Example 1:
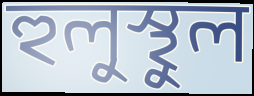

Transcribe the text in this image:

হুলুস্থুল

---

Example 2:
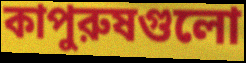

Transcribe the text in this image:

কাপুরুষগুলো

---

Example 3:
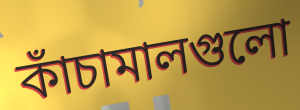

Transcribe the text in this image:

কাঁচামালগুলো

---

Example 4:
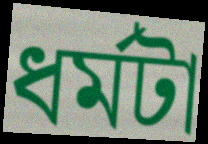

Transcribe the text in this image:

ধর্মটা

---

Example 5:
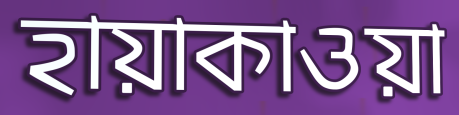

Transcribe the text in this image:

হায়াকাওয়া